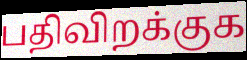
பதிவிறக்குக